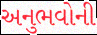
અનુભવોની